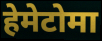
हेमेटोमा